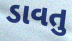
ડાવતુ